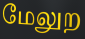
மேலுற